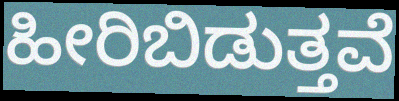
ಹೀರಿಬಿಡುತ್ತವೆ